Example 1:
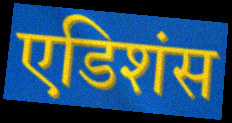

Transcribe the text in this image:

एडिशंस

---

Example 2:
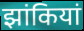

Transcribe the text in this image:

झांकियां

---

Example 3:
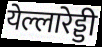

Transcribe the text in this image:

येल्लारेड्डी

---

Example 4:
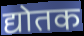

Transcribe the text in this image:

द्योतक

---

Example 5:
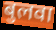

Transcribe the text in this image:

बुलवा